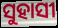
ସୁହାସୀ